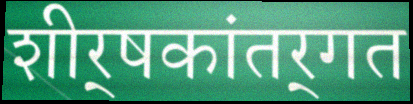
शीर्षकांतर्गत